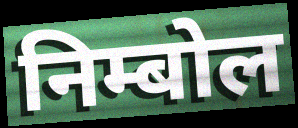
निम्बोल